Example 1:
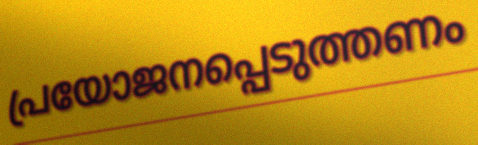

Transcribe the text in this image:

പ്രയോജനപ്പെടുത്തണം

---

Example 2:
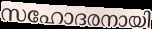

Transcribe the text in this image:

സഹോദരനായി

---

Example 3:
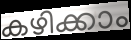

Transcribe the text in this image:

കഴിക്കാം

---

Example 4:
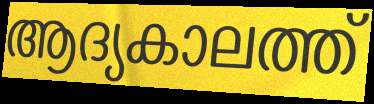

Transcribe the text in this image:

ആദ്യകാലത്ത്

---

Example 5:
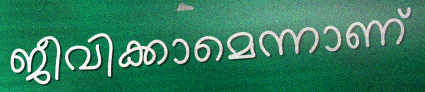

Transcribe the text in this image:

ജീവിക്കാമെന്നാണ്